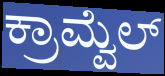
ಕ್ರಾಮ್ವೆಲ್